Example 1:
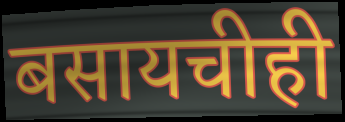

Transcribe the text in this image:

बसायचीही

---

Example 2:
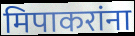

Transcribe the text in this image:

मिपाकरांना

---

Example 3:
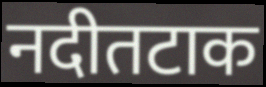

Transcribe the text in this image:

नदीतटाक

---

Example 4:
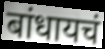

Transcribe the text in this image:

बांधायचं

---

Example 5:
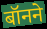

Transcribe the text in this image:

बॉनने